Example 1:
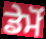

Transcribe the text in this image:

ਡੇਮੋਂ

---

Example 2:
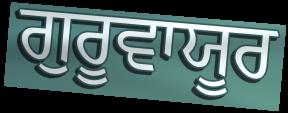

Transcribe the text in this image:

ਗੁਰੂਵਾਯੂਰ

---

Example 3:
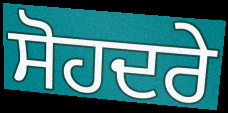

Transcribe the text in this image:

ਸੋਹਦਰੇ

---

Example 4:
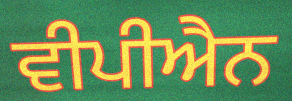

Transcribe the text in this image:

ਵੀਪੀਐਨ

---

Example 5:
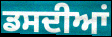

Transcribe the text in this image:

ਡਸਦੀਆਂ